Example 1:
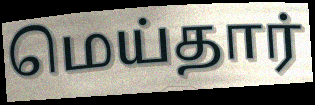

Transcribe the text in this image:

மெய்தார்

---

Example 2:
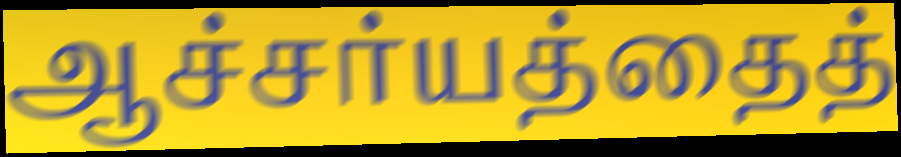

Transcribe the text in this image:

ஆச்சர்யத்தைத்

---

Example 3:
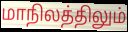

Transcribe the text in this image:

மாநிலத்திலும்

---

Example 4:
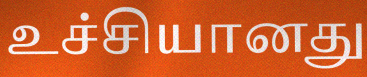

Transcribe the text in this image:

உச்சியானது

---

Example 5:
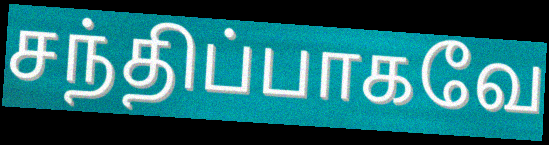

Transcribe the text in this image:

சந்திப்பாகவே